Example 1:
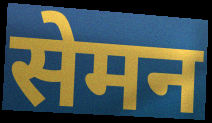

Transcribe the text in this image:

सेमन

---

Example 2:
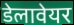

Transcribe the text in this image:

डेलावेयर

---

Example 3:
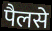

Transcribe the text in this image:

पैलसे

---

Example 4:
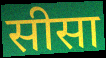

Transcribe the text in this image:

सीसा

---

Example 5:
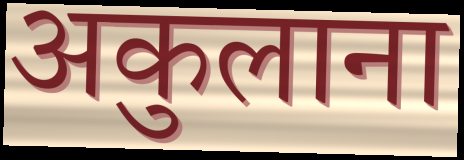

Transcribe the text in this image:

अकुलाना